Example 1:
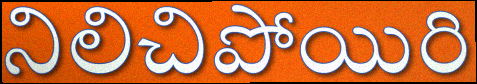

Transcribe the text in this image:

నిలిచిపోయిరి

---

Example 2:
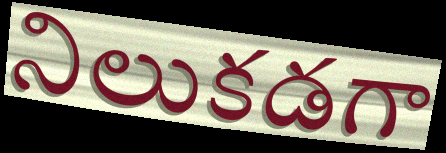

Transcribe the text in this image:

నిలుకడగా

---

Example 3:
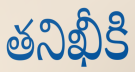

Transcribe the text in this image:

తనిఖీకి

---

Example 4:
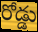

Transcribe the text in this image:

రోడ్డు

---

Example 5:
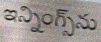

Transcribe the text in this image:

ఇన్నింగ్స్‌ను